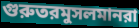
গুরুতরমুসলমানরা